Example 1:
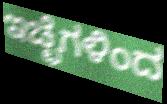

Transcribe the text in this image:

ಇಚ್ಛೆಗಳಿಂದ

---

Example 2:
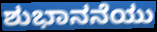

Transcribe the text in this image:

ಶುಭಾನನೆಯು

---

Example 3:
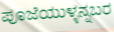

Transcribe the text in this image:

ಪೂಜೆಯುಳ್ಳನ್ನಬರ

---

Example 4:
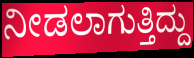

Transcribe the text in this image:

ನೀಡಲಾಗುತ್ತಿದ್ದು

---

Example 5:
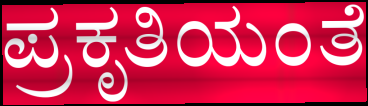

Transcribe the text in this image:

ಪ್ರಕೃತಿಯಂತೆ